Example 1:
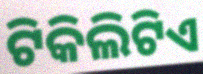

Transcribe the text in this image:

ଟିକିଲିଟିଏ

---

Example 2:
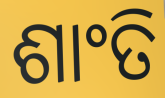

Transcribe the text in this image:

ଶାଂତି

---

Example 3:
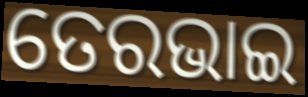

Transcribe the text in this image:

ତେରଭାଇ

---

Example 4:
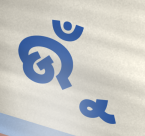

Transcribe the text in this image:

ଉୁଁ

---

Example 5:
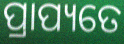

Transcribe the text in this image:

ପ୍ରାପ୍ୟତେ